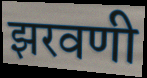
झरवणी